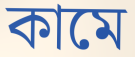
কামে